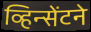
व्हिन्सेंटने